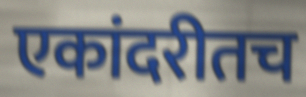
एकांदरीतच